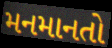
મનમાનતો